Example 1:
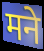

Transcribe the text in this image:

मने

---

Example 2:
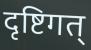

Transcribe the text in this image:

दृष्टिगत्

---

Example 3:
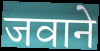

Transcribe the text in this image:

जवाने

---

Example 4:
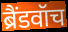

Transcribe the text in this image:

ब्रैंडवॉच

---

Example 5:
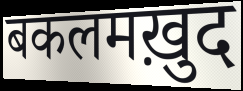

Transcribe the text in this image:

बकलमख़ुद